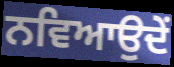
ਨਵਿਆਉਦੇਂ